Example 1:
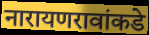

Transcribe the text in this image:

नारायणरावांकडे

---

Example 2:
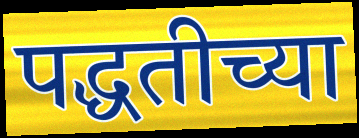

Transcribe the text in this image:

पद्धतीच्या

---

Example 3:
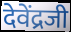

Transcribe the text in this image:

देवेंद्रजी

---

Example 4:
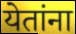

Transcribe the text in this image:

येतांना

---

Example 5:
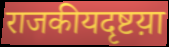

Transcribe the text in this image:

राजकीयदृष्टय़ा